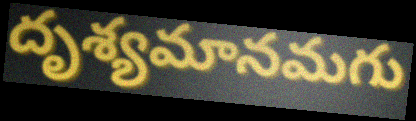
దృశ్యమానమగు